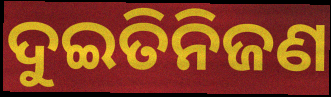
ଦୁଇତିନିଜଣ